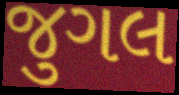
જુગલ